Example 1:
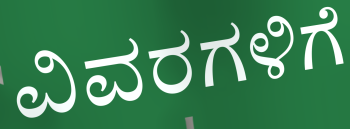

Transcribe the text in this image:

ವಿವರಗಳಿಗೆ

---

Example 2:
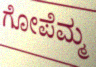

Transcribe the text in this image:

ಗೋಪೆಮ್ಮ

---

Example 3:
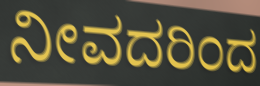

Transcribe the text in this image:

ನೀವದರಿಂದ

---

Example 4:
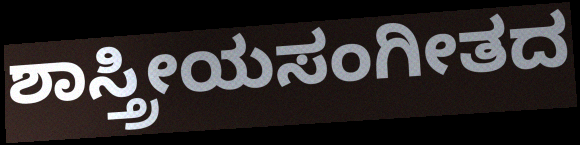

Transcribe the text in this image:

ಶಾಸ್ತ್ರೀಯಸಂಗೀತದ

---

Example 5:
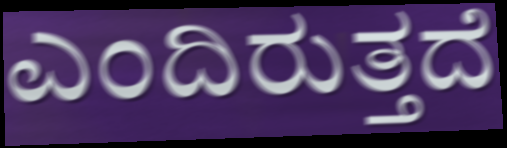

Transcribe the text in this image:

ಎಂದಿರುತ್ತದೆ